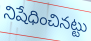
నిషేధించినట్టు